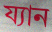
য্যান